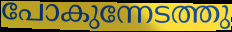
പോകുന്നേടത്തു